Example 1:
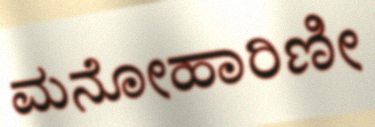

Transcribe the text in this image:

ಮನೋಹಾರಿಣೀ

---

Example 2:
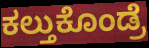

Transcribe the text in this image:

ಕಲ್ತುಕೊಂಡ್ರೆ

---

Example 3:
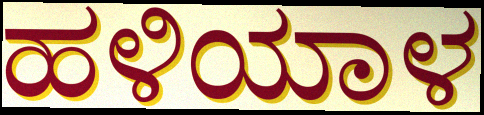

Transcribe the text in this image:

ಹಳಿಯಾಳ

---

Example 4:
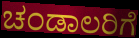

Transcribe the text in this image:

ಚಂಡಾಲರಿಗೆ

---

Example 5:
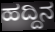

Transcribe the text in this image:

ಹದ್ದಿನ